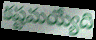
కష్టమయ్యేది